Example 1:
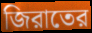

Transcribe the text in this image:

জিরাতের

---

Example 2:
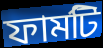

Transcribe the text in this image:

ফার্মটি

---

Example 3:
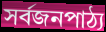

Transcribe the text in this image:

সর্বজনপাঠ্য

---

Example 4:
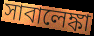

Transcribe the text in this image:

সাবালেঙ্কা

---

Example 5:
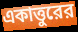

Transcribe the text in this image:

একাত্তুরের